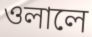
ওলালে